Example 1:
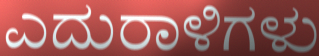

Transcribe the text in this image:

ಎದುರಾಳಿಗಳು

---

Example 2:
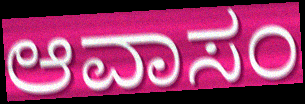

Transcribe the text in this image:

ಆವಾಸಂ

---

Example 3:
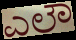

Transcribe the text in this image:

ಎಲೌ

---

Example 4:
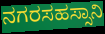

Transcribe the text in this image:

ನಗರಸಹಸ್ಸಾನಿ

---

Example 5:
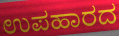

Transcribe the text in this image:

ಉಪಹಾರದ